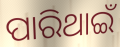
ପାରିଥାଇଁ